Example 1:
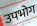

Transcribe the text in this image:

उपभोग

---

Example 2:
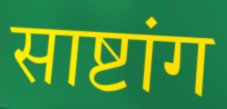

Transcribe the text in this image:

साष्टांग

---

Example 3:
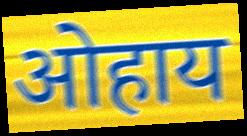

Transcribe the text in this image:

ओहाय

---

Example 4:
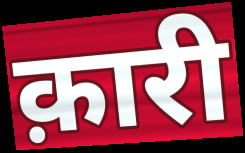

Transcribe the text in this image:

क़ारी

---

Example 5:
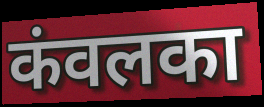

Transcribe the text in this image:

कंवलका